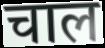
चाल